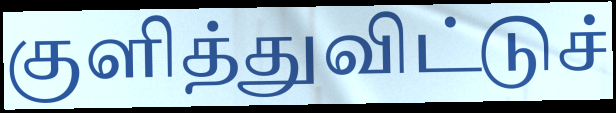
குளித்துவிட்டுச்